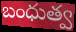
బంధుత్వ